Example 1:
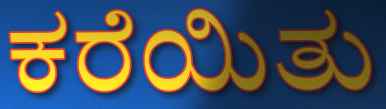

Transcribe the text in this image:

ಕರೆಯಿತು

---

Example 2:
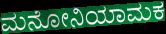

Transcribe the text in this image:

ಮನೋನಿಯಾಮಕ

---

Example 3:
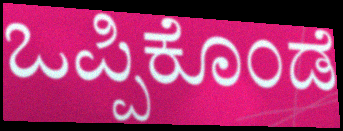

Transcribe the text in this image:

ಒಪ್ಪಿಕೊಂಡೆ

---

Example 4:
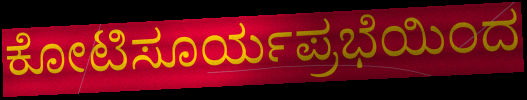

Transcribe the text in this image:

ಕೋಟಿಸೂರ್ಯಪ್ರಭೆಯಿಂದ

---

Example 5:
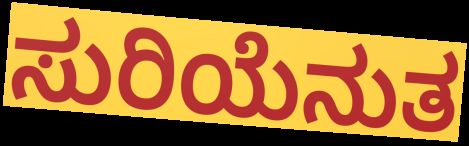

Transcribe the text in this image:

ಸುರಿಯೆನುತ